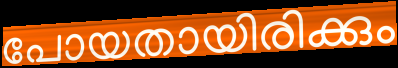
പോയതായിരിക്കും